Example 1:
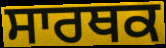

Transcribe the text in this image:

ਸਾਰਥਕ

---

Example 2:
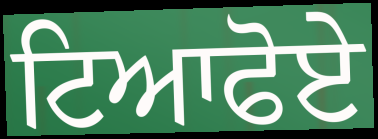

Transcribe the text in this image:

ਟਿਆਫੋਏ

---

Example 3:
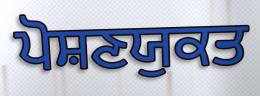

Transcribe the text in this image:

ਪੋਸ਼ਣਯੁਕਤ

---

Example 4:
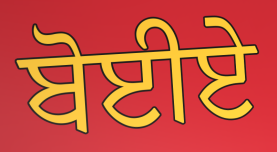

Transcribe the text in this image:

ਬੋਈਏ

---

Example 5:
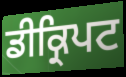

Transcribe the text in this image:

ਡੀਕ੍ਰਿਪਟ